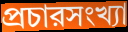
প্রচারসংখ্যা